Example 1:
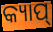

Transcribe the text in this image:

କ୍ୟାପ୍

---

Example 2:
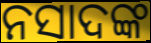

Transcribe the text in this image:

ନସାଦଙ୍କ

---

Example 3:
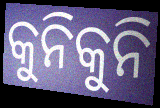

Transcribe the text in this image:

କୁନିକୁନି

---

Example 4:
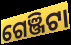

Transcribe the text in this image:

ଗେଞ୍ଜିଟା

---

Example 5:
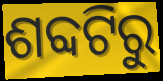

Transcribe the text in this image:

ଶବ୍ଦଟିରୁ